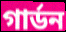
গার্ডন